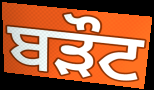
ਬੜੌਟ